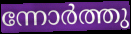
ന്നോർത്തു